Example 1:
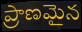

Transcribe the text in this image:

ప్రాణమైన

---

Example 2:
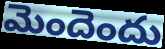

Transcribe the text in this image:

మెందెందు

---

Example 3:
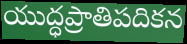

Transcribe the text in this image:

యుద్ధప్రాతిపదికన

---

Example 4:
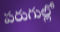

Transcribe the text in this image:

పరుగుల్లో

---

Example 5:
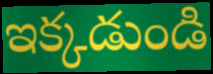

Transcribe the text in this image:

ఇక్కడుండి